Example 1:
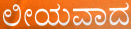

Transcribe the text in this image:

ಲೀಯವಾದ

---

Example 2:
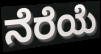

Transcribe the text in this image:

ನೆರೆಯೆ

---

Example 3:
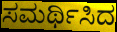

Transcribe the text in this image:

ಸಮರ್ಥಿಸಿದ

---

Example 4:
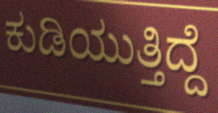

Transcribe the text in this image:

ಕುಡಿಯುತ್ತಿದ್ದೆ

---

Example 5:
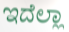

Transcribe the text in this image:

ಇದೆಲ್ಲಾ